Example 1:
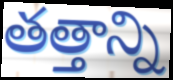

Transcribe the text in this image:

తత్తాన్ని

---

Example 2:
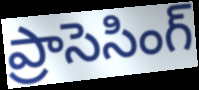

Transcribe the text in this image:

ప్రాసెసింగ్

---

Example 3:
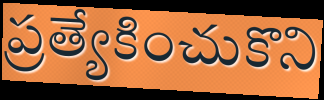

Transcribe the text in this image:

ప్రత్యేకించుకొని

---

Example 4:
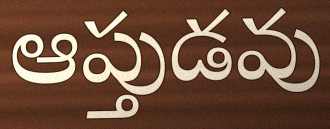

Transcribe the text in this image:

ఆప్తుడవు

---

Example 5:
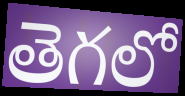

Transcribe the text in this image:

తెగలో